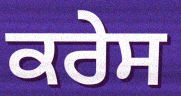
ਕਰੇਸ